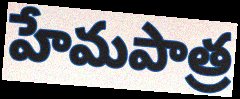
హేమపాత్ర